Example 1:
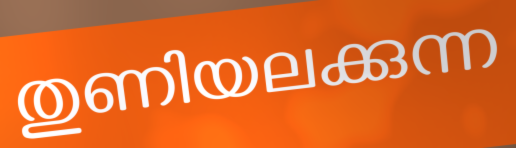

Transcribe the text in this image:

തുണിയലക്കുന്ന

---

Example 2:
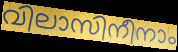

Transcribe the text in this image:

വിലാസിനീനാം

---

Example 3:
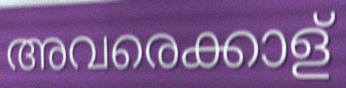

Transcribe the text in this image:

അവരെക്കാള്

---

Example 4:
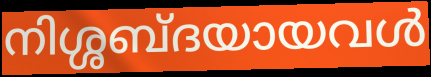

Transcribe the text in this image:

നിശ്ശബ്ദയായവൾ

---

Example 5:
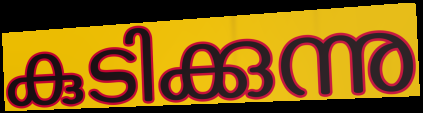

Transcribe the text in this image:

കുടിക്കുന്നു